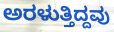
ಅರಳುತ್ತಿದ್ದವು